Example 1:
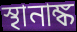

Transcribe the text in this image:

স্থানাঙ্ক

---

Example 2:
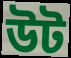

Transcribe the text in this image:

উট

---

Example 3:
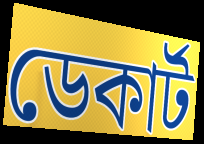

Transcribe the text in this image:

ডেকাৰ্ট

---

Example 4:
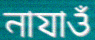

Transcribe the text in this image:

নাযাওঁ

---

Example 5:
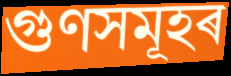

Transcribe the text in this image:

গুণসমূহৰ